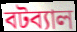
বটব্যাল